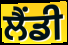
ਲੈਂਡੀ